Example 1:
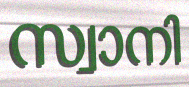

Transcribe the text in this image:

സ്വാനി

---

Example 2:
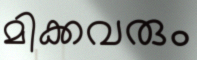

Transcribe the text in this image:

മിക്കവരും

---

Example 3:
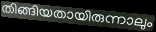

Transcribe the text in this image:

തിങ്ങിയതായിരുന്നാലും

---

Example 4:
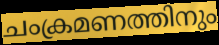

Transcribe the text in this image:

ചംക്രമണത്തിനും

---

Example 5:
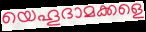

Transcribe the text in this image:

യെഹൂദാമക്കളെ